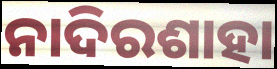
ନାଦିରଶାହା